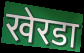
खेरडा